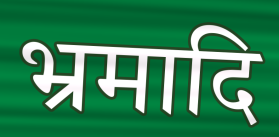
भ्रमादि